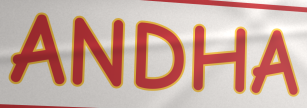
ANDHA